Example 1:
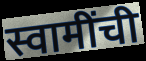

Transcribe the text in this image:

स्वामींची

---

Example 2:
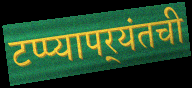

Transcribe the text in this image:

टप्प्यापर्यंतची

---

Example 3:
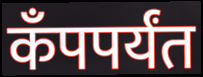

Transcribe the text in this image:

कँपपर्यंत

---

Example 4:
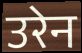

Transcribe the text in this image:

उरेन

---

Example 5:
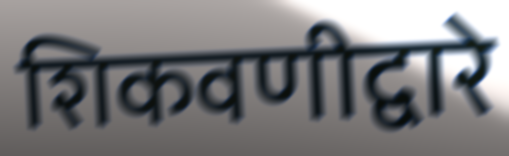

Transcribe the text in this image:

शिकवणीद्वारे